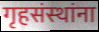
गृहसंस्थांना